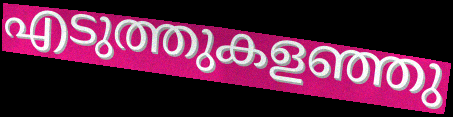
എടുത്തുകളഞ്ഞു